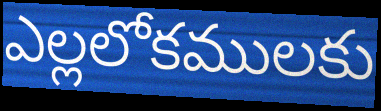
ఎల్లలోకములకు